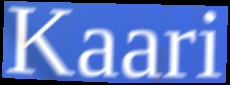
Kaari